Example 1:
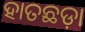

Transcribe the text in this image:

ହାତଛଡ଼ା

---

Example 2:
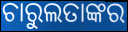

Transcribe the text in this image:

ଚାରୁଲତାଙ୍କର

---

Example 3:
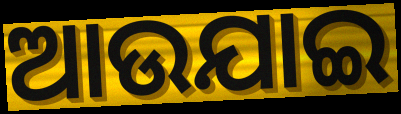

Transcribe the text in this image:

ଆଉଯାଇ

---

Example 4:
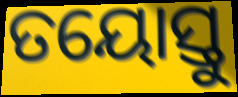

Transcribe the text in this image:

ତୟୋସ୍ତୁ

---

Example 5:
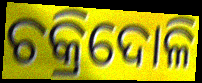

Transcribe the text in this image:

ଚକ୍ରିଦୋଳି